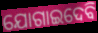
ଯୋଗାଇଦେବି